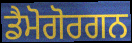
ਡੈਮੋਗੋਰਗਨ